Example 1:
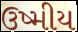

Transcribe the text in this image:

ઉષ્મીય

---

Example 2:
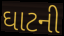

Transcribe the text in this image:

ઘાટની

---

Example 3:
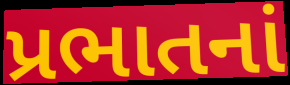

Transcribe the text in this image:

પ્રભાતનાં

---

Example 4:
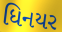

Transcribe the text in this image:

ધિનયર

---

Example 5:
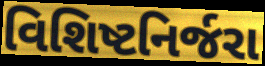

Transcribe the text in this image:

વિશિષ્ટનિર્જરા